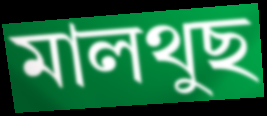
মালথুছ